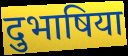
दुभाषिया